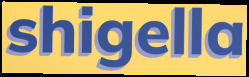
shigella